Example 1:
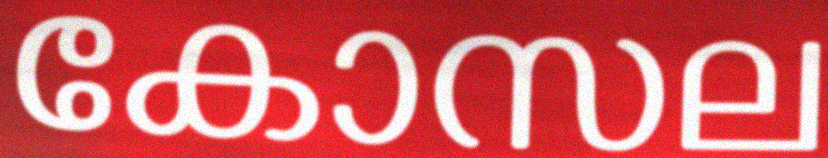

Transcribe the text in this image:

കോസല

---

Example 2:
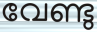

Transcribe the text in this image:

വേണ്ടു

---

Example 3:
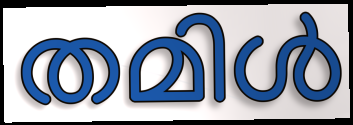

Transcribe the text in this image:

തമിൾ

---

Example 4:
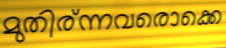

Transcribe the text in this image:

മുതിര്ന്നവരൊക്കെ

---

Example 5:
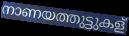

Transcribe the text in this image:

നാണയത്തുട്ടുകള്